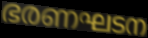
ഭരണഘടന